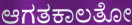
ಆಗತಕಾಲತೋ